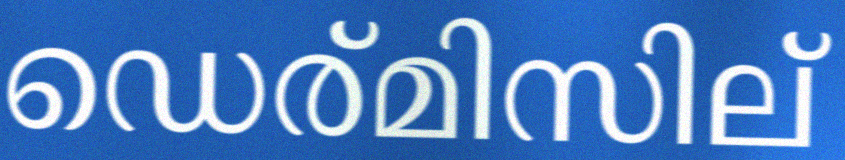
ഡെര്മിസില്